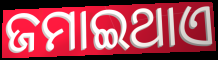
ଜମାଇଥାଏ